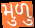
મુળુ